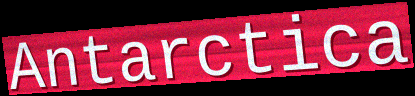
Antarctica